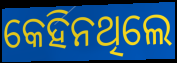
କେହିନଥିଲେ